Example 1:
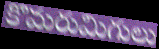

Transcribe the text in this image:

కొమరుమిగులు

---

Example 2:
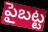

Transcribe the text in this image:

పైబట్ట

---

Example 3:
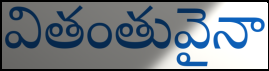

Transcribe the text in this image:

వితంతువైనా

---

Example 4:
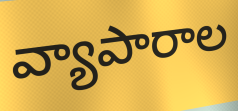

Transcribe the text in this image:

వ్యాపారాల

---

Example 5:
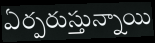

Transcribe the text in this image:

ఏర్పరుస్తున్నాయి